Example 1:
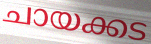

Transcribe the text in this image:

ചായക്കട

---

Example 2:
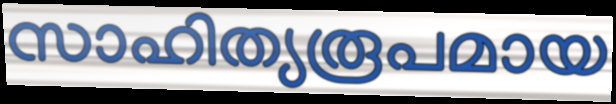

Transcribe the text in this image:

സാഹിത്യരൂപമായ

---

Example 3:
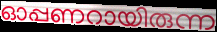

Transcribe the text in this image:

ഓപ്പണറായിരുന്ന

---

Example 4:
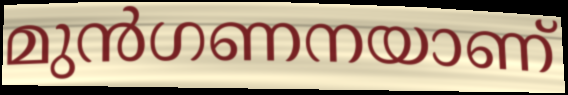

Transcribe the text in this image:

മുൻഗണനയാണ്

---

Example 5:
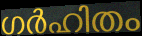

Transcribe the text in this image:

ഗർഹിതം